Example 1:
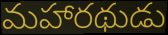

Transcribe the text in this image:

మహారథుడు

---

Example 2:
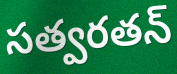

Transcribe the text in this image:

సత్వరతన్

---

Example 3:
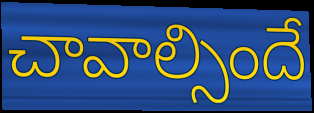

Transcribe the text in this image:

చావాల్సిందే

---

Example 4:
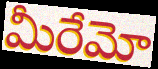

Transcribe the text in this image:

మీరేమో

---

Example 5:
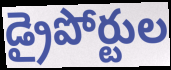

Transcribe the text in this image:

డ్రైపోర్టుల